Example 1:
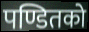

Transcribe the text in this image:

पण्डितको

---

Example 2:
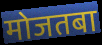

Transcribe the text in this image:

मोजतबा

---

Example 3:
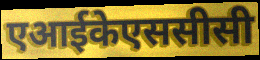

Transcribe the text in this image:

एआईकेएससीसी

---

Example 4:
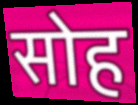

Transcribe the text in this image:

सोह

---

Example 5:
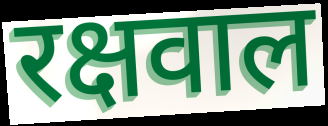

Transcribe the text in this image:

रक्षवाल